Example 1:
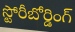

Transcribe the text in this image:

స్టోరీబోర్డింగ్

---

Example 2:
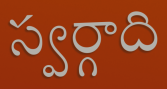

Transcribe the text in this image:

స్వర్గాది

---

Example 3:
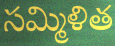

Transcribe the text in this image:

సమ్మిళిత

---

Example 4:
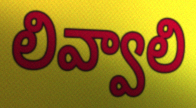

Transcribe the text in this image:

లివ్వాలి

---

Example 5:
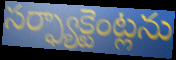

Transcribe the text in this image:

సర్ఫ్యాక్టెంట్లను